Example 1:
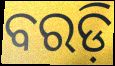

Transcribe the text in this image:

ବରଡ଼ି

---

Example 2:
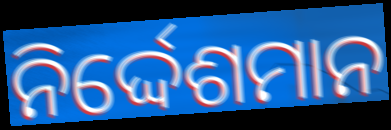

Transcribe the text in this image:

ନିର୍ଦ୍ଦେଶମାନ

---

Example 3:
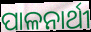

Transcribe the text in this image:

ପାଳନାର୍ଥୀ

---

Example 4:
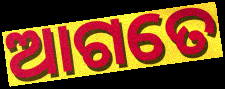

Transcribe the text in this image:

ଆଗତେ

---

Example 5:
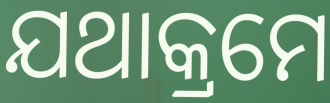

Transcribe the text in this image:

ଯଥାକ୍ରମେ